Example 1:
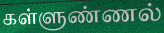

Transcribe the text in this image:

கள்ளுண்ணல்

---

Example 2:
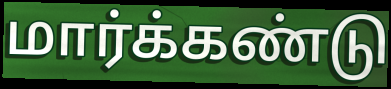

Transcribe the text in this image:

மார்க்கண்டு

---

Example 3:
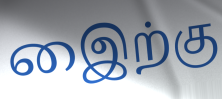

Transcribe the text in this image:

இைற்கு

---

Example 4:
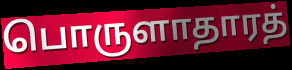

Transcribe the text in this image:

பொருளாதாரத்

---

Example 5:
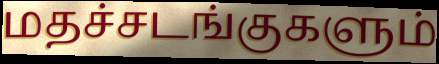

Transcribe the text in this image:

மதச்சடங்குகளும்